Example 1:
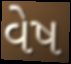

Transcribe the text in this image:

વેષ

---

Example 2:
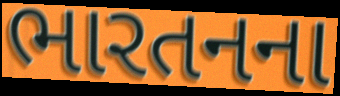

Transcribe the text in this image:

ભારતનના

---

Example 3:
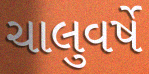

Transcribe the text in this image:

ચાલુવર્ષે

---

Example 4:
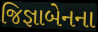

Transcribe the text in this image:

જિજ્ઞાબેનના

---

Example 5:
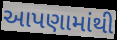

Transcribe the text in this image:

આપણામાંથી